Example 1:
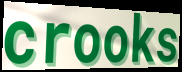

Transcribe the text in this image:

crooks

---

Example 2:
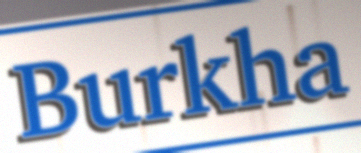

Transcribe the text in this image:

Burkha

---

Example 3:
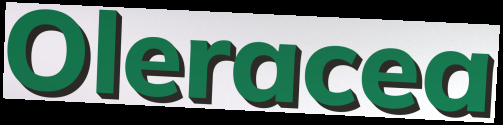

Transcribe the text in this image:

Oleracea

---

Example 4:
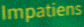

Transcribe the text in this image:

Impatiens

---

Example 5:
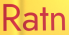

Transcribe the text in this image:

Ratn